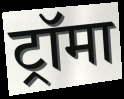
ट्रॉमा